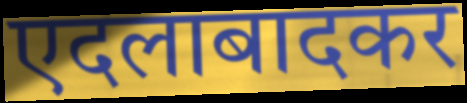
एदलाबादकर